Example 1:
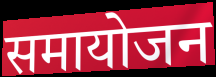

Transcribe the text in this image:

समायोजन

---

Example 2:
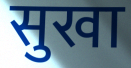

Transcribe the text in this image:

सुखा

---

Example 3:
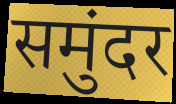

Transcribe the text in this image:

समुंदर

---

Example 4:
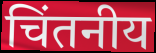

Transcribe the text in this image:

चिंतनीय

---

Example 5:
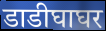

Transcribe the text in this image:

डाडीघाघर